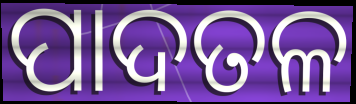
ପାଦତଳ